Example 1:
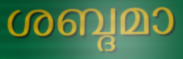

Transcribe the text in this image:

ശബ്ദമാ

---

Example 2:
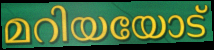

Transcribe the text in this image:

മറിയയോട്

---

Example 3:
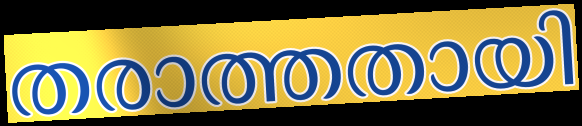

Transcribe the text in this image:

തരാത്തതായി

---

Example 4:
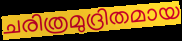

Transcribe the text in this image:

ചരിത്രമുദ്രിതമായ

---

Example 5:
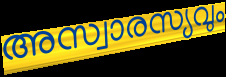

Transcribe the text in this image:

അസ്വാരസ്യവും